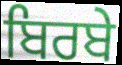
ਬਿਰਬੇ